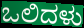
ಒಲಿದಳು